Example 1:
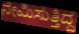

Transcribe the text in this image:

ನೇಮಿಸುತ್ತಿದ್ದ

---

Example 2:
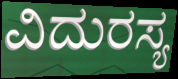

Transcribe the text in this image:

ವಿದುರಸ್ಯ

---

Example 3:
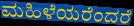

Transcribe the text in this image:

ಮಹಿಳೆಯರೆಂದರೆ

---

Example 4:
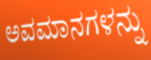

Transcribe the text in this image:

ಅವಮಾನಗಳನ್ನು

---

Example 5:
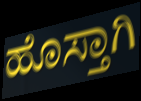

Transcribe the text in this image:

ಹೊಸ್ತಾಗಿ